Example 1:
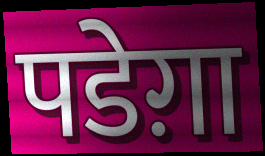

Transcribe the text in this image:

पडेग़ा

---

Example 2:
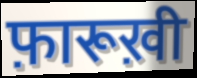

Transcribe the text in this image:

फ़ारूख़ी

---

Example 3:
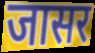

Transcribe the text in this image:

जासर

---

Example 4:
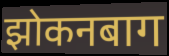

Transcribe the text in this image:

झोकनबाग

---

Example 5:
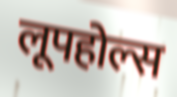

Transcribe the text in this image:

लूपहोल्स